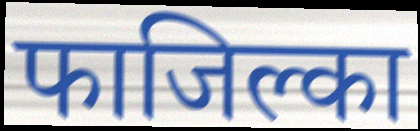
फाजिल्का